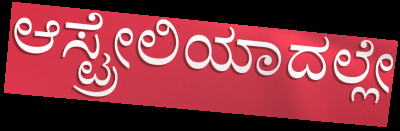
ಆಸ್ಟ್ರೇಲಿಯಾದಲ್ಲೇ